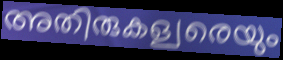
അതിരുകള്വരെയും